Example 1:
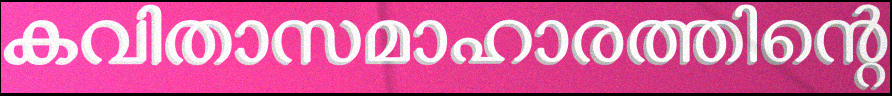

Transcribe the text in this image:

കവിതാസമാഹാരത്തിന്റെ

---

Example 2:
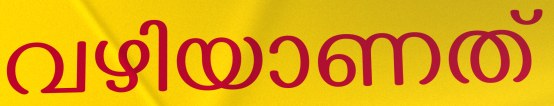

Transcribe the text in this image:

വഴിയാണത്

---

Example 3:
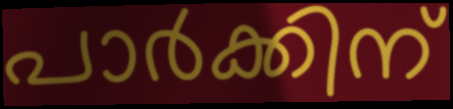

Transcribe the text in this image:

പാർക്കിന്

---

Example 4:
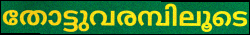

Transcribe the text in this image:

തോട്ടുവരമ്പിലൂടെ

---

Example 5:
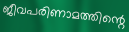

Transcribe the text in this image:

ജീവപരിണാമത്തിന്റെ